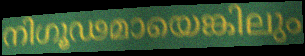
നിഗൂഢമായെങ്കിലും